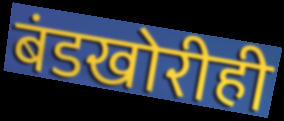
बंडखोरीही